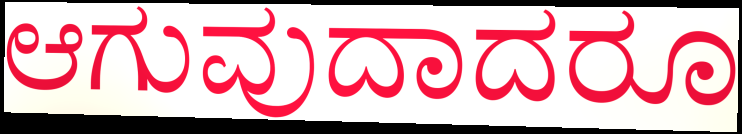
ಆಗುವುದಾದರೂ